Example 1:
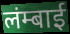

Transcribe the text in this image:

लंम्बाई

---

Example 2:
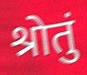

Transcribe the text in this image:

श्रोतुं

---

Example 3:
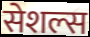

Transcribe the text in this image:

सेशल्स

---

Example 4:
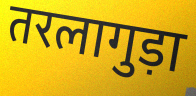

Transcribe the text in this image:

तरलागुड़ा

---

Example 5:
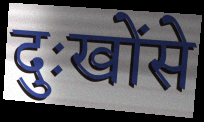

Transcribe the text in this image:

दुःखोंसे